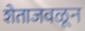
शेताजवळून